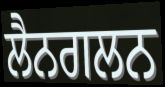
ਲੈਨਗਲਨ